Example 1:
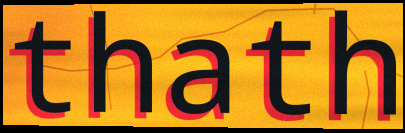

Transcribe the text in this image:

thath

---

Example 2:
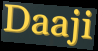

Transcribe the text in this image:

Daaji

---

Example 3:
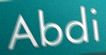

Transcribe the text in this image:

Abdi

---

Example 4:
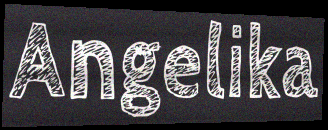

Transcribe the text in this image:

Angelika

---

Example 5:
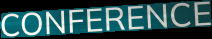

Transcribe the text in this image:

CONFERENCE